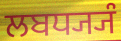
ਲਬਧ੍ਯ੍ਯੰ